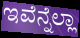
ಇವೆನ್ನೆಲ್ಲಾ